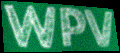
WPV